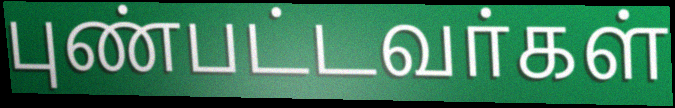
புண்பட்டவர்கள்